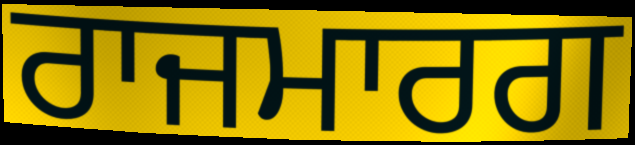
ਰਾਜਮਾਰਗ